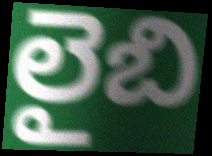
లైబి